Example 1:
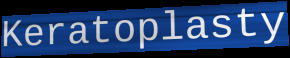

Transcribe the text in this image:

Keratoplasty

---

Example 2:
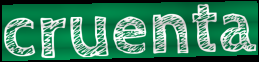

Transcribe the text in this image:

cruenta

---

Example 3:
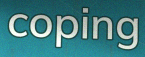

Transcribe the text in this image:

coping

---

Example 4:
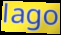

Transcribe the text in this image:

Iago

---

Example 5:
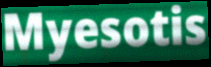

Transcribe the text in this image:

Myesotis